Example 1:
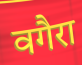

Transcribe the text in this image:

वगैरा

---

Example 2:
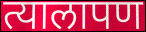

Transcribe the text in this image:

त्यालापण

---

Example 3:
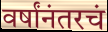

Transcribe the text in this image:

वर्षांनंतरचं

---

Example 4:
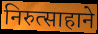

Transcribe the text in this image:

निरुत्साहाने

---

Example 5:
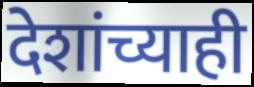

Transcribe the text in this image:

देशांच्याही